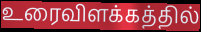
உரைவிளக்கத்தில்